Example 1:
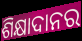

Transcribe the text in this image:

ଶିକ୍ଷାଦାନର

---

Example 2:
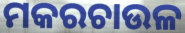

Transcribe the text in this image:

ମକରଚାଉଳ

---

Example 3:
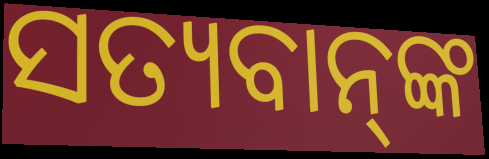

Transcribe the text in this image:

ସତ୍ୟବାନ୍‌ଙ୍କ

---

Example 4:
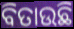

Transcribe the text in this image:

ବିତାଉଛି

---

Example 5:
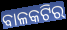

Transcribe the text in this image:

ବାଳକଟିର